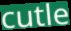
cutle